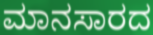
ಮಾನಸಾರದ